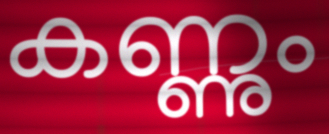
കണ്ണും